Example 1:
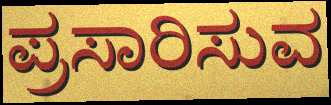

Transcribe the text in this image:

ಪ್ರಸಾರಿಸುವ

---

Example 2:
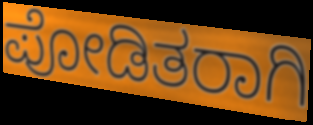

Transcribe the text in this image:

ಪೋಡಿತರಾಗಿ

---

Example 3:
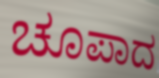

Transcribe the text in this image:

ಚೂಪಾದ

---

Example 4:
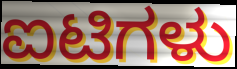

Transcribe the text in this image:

ಐಟಿಗಳು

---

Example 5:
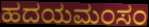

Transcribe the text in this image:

ಹದಯಮಂಸಂ